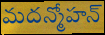
మదన్మోహన్